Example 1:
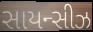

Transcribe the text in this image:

સાયન્સીઝ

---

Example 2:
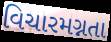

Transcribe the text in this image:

વિચારમગ્નતા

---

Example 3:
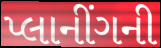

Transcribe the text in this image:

પ્લાનીંગની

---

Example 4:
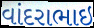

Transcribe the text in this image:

વાંદરાભાઇ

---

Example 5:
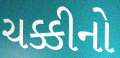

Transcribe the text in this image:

ચક્કીનો